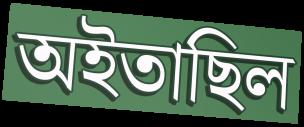
অইতাছিল